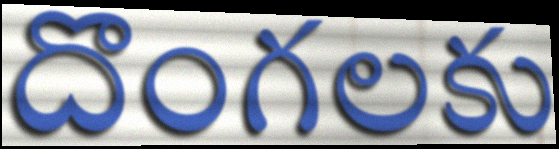
దొంగలకు